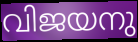
വിജയനു